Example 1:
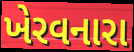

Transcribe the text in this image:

ખેરવનારા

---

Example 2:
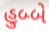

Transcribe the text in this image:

હુબ્બે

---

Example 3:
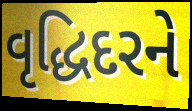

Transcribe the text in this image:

વૃદ્ધિદરને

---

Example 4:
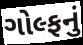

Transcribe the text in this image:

ગોલ્ફનું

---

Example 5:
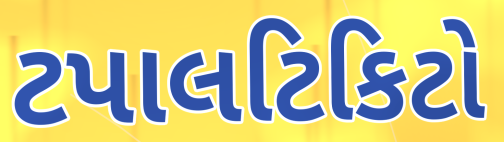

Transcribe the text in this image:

ટપાલટિકિટો